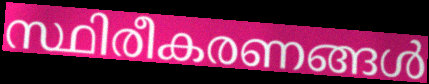
സ്ഥിരീകരണങ്ങൾ